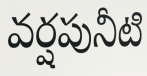
వర్షపునీటి